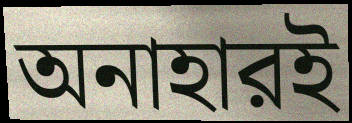
অনাহারই